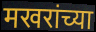
मखरांच्या